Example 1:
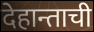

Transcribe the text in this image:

देहान्ताची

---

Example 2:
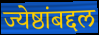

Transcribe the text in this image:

ज्येष्ठांबद्दल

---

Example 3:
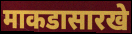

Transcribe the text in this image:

माकडासारखे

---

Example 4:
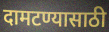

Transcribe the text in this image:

दामटण्यासाठी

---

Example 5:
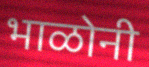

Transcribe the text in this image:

भाळोनी